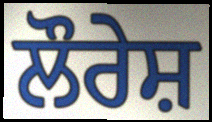
ਲੌਰੇਸ਼